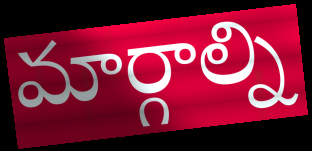
మార్గాల్ని